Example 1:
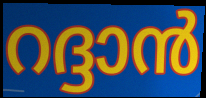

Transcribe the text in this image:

റദ്ദാൻ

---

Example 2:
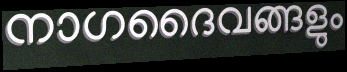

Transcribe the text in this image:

നാഗദൈവങ്ങളും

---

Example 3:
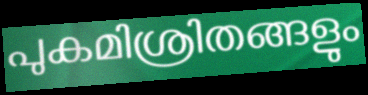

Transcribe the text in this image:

പുകമിശ്രിതങ്ങളും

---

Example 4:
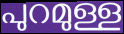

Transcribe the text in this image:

പുറമുള്ള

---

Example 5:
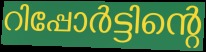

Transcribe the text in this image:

റിപ്പോർട്ടിന്റെ